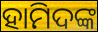
ହାମିଦଙ୍କ